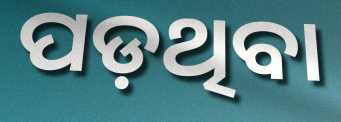
ପଡ଼ଥିବା